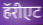
हॅरीएट